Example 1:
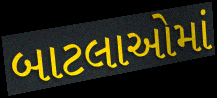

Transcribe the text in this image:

બાટલાઓમાં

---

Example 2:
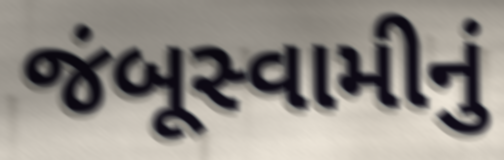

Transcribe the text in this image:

જંબૂસ્વામીનું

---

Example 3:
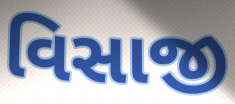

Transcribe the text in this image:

વિસાજી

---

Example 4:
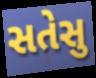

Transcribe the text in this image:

સતેસુ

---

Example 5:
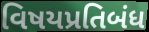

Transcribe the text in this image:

વિષયપ્રતિબંધ